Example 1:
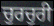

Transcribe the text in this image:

ਚੁਰਚੁਰੀ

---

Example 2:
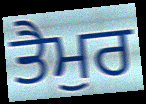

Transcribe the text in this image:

ਤੈਮੁਰ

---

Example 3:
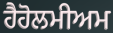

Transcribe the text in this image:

ਹੈਹੋਲਮੀਅਮ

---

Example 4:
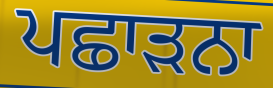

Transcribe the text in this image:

ਪਛਾੜਨਾ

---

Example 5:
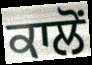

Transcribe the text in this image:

ਕਾਲੋਂ